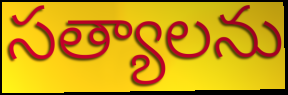
సత్యాలను